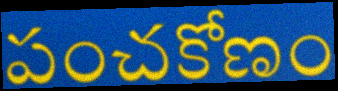
పంచకోణం